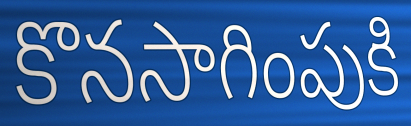
కొనసాగింపుకి